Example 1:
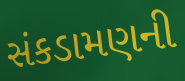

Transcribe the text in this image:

સંકડામણની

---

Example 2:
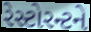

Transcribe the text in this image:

રેસ્ટોરન્ટને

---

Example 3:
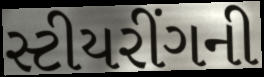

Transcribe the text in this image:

સ્ટીયરીંગની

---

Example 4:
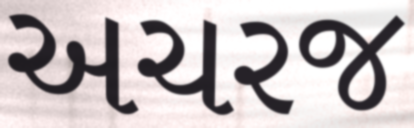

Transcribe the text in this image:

અચરજ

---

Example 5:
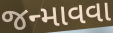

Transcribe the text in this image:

જન્માવવા